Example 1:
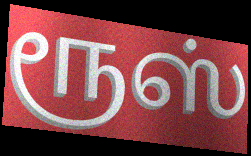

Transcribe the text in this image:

ரூஸ்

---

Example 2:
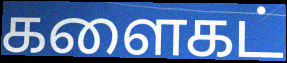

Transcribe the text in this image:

களைகட்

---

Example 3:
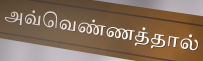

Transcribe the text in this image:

அவ்வெண்ணத்தால்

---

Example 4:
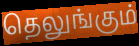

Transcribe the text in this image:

தெலுங்கும்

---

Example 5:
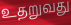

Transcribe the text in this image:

உதறுவது